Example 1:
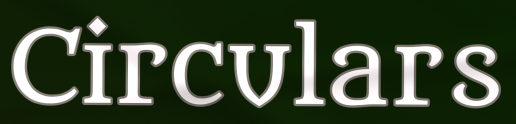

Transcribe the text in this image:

Circulars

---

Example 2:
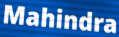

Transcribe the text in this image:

Mahindra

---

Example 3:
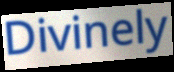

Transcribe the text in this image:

Divinely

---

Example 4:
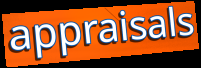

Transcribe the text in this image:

appraisals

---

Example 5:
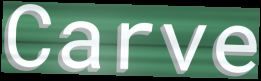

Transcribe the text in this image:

Carve